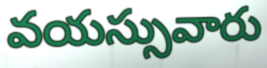
వయస్సువారు